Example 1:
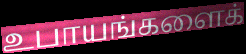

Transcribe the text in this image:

உபாயங்களைக்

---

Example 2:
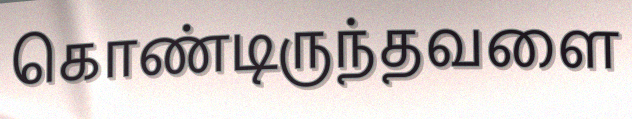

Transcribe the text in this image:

கொண்டிருந்தவளை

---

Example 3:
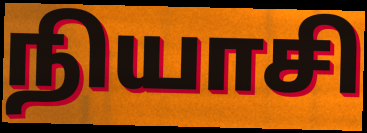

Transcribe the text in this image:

நியாசி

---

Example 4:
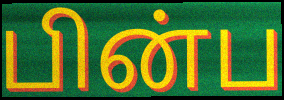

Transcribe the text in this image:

பின்ப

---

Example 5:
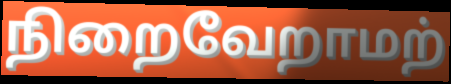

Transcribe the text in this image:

நிறைவேறாமற்